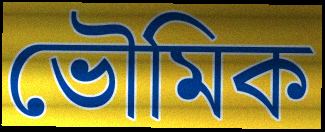
ভৌমিক